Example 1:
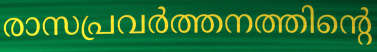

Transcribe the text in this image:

രാസപ്രവർത്തനത്തിന്റെ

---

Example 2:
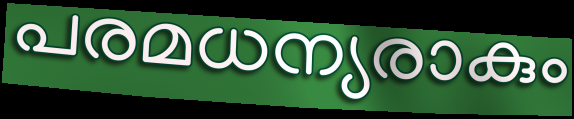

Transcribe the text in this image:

പരമധന്യരാകും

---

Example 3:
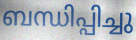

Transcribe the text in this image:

ബന്ധിപ്പിച്ചു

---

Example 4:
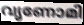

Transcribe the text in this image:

വൃണോമി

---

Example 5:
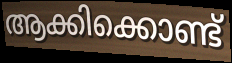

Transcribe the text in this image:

ആക്കിക്കൊണ്ട്